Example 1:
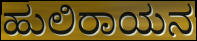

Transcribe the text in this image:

ಹುಲಿರಾಯನ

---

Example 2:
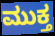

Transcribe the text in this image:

ಮುಕ್ತ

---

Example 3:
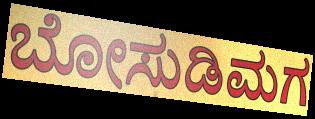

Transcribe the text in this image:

ಬೋಸುಡಿಮಗ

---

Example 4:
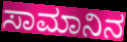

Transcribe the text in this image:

ಸಾಮಾನಿನ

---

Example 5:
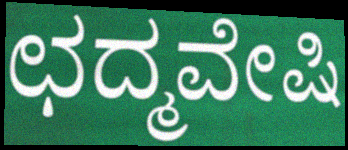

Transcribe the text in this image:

ಛದ್ಮವೇಷಿ